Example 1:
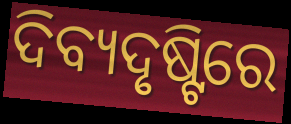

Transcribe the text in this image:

ଦିବ୍ୟଦୃଷ୍ଟିରେ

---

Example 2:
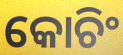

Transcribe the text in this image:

କୋଚିଂ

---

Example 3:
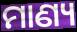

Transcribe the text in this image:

ମାଣ୍ୟ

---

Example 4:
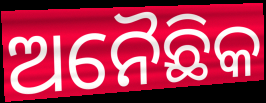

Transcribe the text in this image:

ଅନୈଛିକ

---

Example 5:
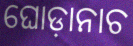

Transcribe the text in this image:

ଘୋଡ଼ାନାଚ